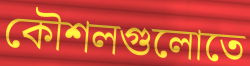
কৌশলগুলোতে